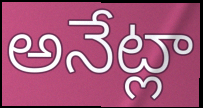
అనేట్లా